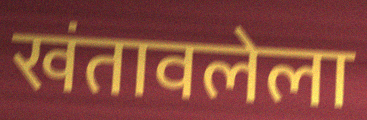
खंतावलेला